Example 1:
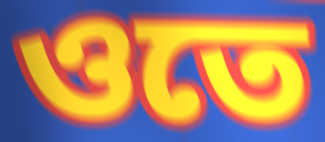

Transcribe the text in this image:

ওতে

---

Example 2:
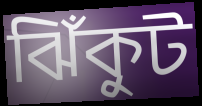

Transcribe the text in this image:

ঝিঁকুট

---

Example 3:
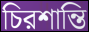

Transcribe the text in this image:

চিরশান্তি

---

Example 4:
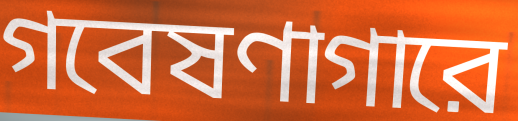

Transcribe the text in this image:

গবেষণাগারে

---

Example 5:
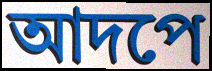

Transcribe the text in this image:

আদপে